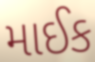
માઈક